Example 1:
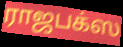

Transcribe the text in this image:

ராஜபக்ஸ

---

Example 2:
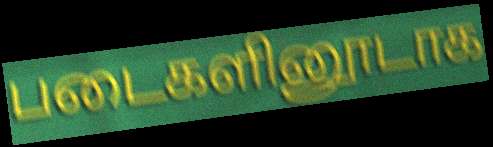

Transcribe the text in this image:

படைகளினூடாக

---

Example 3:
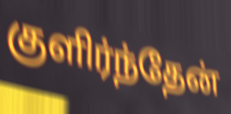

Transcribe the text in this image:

குளிர்ந்தேன்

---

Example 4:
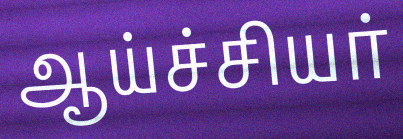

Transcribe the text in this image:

ஆய்ச்சியர்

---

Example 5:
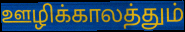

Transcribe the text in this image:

ஊழிக்காலத்தும்